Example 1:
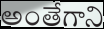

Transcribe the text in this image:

అంతేగాని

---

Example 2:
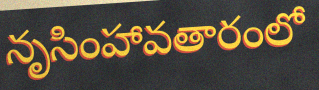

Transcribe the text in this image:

నృసింహావతారంలో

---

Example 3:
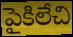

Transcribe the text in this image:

పైకిలేచి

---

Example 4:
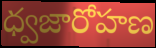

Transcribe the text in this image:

ధ్వజారోహణ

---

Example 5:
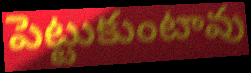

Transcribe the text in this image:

పెట్టుకుంటావు